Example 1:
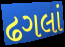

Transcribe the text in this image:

ઢગલાં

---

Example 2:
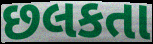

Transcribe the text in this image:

છલકતા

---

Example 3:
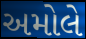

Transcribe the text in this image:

અમોલે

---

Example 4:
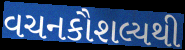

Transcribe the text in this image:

વચનકૌશલ્યથી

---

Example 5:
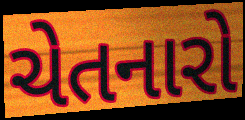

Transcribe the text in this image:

ચેતનારો